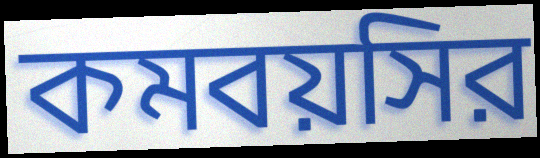
কমবয়সির